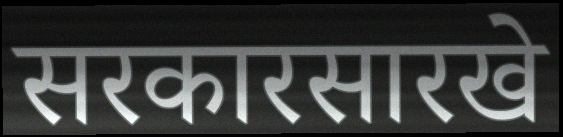
सरकारसारखे